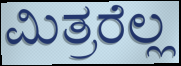
ಮಿತ್ರರೆಲ್ಲ